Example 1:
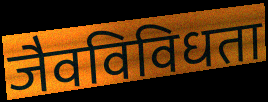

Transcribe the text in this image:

जैवविविधता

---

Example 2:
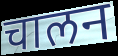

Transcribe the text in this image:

चालन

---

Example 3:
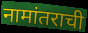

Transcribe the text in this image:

नामांतराची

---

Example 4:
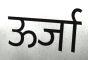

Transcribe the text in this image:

ऊर्जा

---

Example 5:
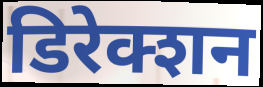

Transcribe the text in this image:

डिरेक्शन